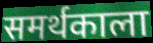
समर्थकाला